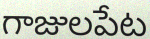
గాజులపేట